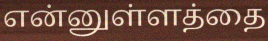
என்னுள்ளத்தை